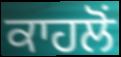
ਕਾਹਲੋਂ